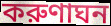
করুণাঘন